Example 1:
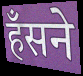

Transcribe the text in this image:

हँसने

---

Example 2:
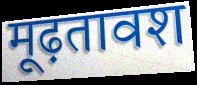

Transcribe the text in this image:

मूढ़तावश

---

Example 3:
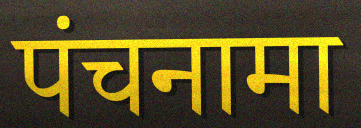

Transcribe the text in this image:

पंचनामा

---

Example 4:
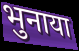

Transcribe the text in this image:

भुनाया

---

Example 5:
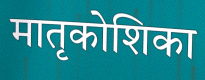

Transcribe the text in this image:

मातृकोशिका